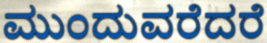
ಮುಂದುವರೆದರೆ